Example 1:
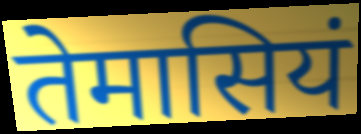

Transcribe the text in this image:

तेमासियं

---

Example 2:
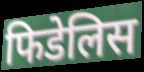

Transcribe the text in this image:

फिडेलिस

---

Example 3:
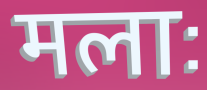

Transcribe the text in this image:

मलाः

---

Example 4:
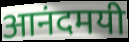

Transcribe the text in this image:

आनंदमयी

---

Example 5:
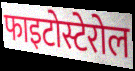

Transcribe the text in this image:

फाइटोस्टेरोल